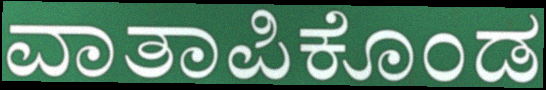
ವಾತಾಪಿಕೊಂಡ